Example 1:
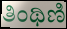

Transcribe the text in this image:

ತಿಂಥಿಣಿ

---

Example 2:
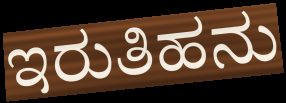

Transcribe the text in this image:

ಇರುತಿಹನು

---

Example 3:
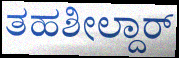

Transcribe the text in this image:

ತಹಶೀಲ್ದಾರ್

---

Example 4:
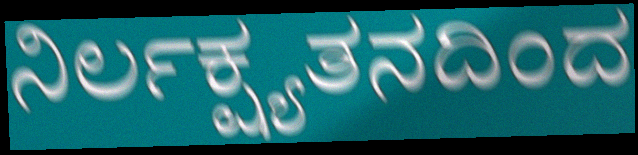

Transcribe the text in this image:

ನಿರ್ಲಕ್ಷ್ಯತನದಿಂದ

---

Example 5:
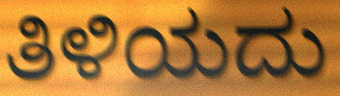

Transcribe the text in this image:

ತಿಳಿಯದು